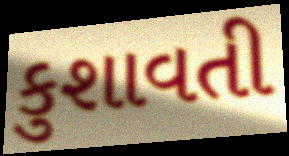
કુશાવતી